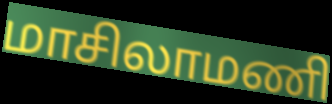
மாசிலாமணி